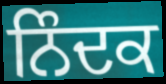
ਨਿੰਦਕ